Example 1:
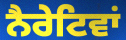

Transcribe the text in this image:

ਨੈਰੇਟਿਵਾਂ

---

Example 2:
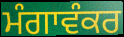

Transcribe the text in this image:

ਮੰਗਾਵੰਕਰ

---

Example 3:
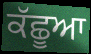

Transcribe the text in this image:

ਕੱਛੂਆ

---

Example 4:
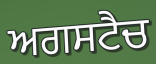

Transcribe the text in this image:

ਅਗਸਟੈਚ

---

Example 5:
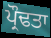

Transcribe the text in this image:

ਪ੍ਰੌਢਤਾ